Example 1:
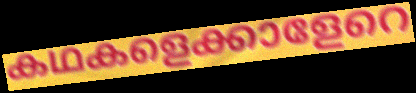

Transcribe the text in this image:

കഥകളെക്കാളേറെ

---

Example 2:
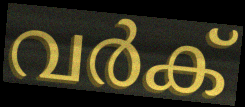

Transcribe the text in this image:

വർക്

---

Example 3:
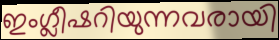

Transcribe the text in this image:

ഇംഗ്ലീഷറിയുന്നവരായി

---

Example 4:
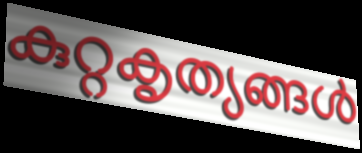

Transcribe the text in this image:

കുറ്റകൃത്യങ്ങൾ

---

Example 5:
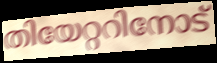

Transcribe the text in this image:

തിയേറ്ററിനോട്